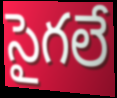
సైగలే